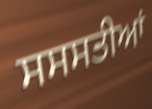
ਸਸਸਤੀਆਂ